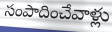
సంపాదించేవాళ్లు